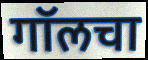
गॉलचा